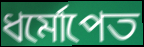
ধর্মোপেত